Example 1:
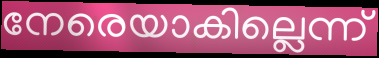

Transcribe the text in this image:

നേരെയാകില്ലെന്ന്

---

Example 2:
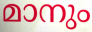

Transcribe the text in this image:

മാനും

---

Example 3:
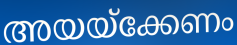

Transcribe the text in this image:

അയയ്ക്കേണം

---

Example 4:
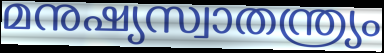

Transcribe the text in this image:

മനുഷ്യസ്വാതന്ത്ര്യം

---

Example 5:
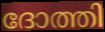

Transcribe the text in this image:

ദോത്തി